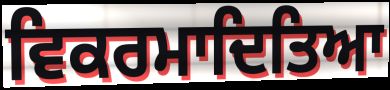
ਵਿਕਰਮਾਦਿਤਿਆ